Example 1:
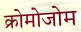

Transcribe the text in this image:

क्रोमोजोम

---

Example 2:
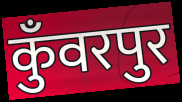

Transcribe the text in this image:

कुँवरपुर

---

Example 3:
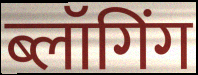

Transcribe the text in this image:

ब्‍लॉगिंग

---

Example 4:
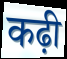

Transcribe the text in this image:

कढ़ी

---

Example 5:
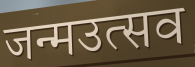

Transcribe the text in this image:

जन्मउत्सव